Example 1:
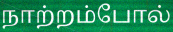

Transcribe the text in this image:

நாற்றம்போல்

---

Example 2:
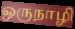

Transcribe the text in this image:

ஒருநாழி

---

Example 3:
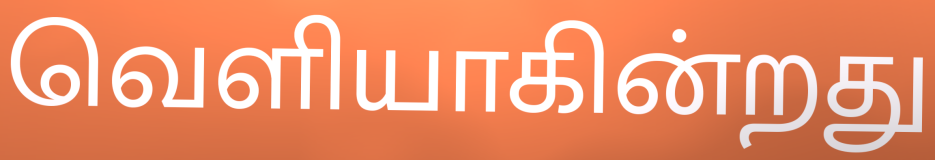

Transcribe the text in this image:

வெளியாகின்றது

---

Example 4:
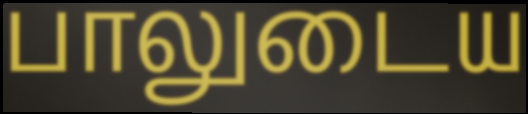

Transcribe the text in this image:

பாலுடைய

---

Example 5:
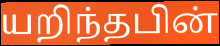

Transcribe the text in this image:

யறிந்தபின்